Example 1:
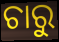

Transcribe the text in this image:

ଚାରୁ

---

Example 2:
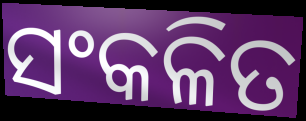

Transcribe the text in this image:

ସଂକଳିତ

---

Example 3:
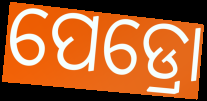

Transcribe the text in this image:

ପେଡ୍ରୋ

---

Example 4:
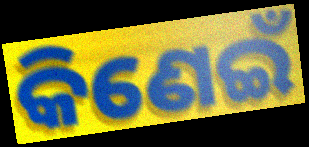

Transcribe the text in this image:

କିଣେଇଁ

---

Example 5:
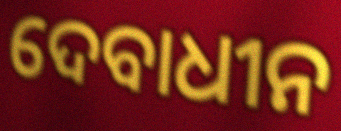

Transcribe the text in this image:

ଦେବାଧୀନ